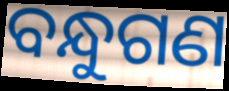
ବନ୍ଧୁଗଣ